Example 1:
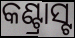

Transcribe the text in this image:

କଣ୍ଟ୍ରାସ୍ଟ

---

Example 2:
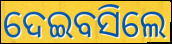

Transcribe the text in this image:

ଦେଇବସିଲେ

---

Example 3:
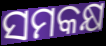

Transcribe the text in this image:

ସମକକ୍ଷ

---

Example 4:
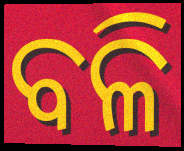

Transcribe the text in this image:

ବଳି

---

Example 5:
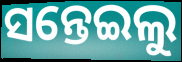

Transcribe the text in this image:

ସନ୍ତେଇଲୁ